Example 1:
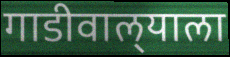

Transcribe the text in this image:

गाडीवाल्याला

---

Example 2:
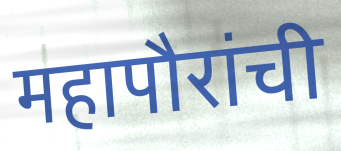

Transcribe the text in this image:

महापौरांची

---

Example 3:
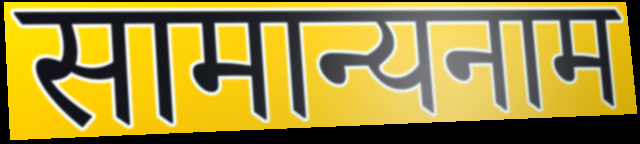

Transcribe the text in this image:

सामान्यनाम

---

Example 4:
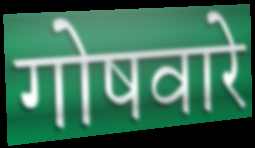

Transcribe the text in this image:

गोषवारे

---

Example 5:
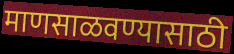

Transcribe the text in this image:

माणसाळवण्यासाठी